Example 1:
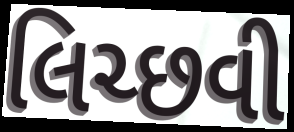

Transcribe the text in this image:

લિચ્છવી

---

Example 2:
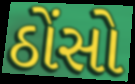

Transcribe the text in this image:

ઠોંસો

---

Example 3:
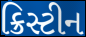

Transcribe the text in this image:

ક્રિસ્ટીન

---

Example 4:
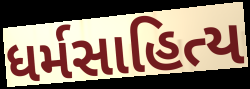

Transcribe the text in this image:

ધર્મસાહિત્ય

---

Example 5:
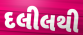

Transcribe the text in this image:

દલીલથી